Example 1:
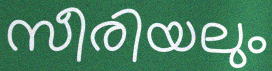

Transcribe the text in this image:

സീരിയലും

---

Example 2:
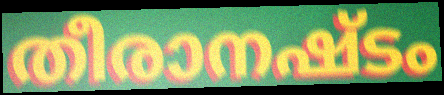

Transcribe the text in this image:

തീരാനഷ്ടം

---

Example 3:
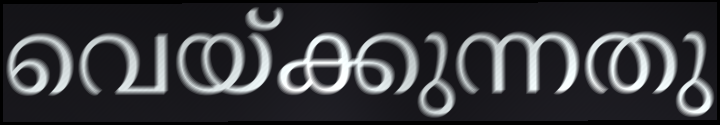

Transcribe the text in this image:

വെയ്ക്കുന്നതു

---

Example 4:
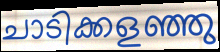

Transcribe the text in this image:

ചാടിക്കളഞ്ഞു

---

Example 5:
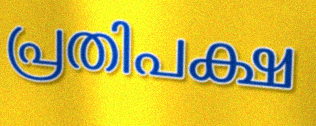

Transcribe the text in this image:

പ്രതിപക്ഷ